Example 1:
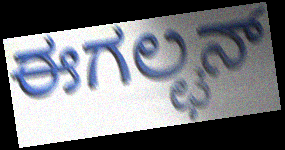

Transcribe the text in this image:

ಈಗಲ್ಟನ್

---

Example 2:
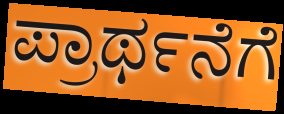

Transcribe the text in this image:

ಪ್ರಾರ್ಥನೆಗೆ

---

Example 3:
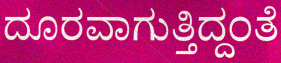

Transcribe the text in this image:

ದೂರವಾಗುತ್ತಿದ್ದಂತೆ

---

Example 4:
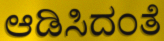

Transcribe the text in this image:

ಆಡಿಸಿದಂತೆ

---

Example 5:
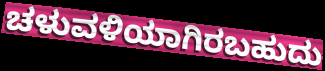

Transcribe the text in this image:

ಚಳುವಳಿಯಾಗಿರಬಹುದು